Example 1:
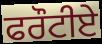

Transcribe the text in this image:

ਫਰੌਟੀਏ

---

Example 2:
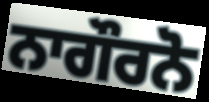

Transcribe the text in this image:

ਨਾਗੌਰਨੋ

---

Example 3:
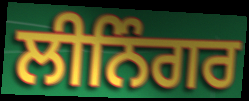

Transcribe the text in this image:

ਲੀਨਿੰਗਰ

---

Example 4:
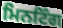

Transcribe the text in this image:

ਮਿਨਟਿੰਗ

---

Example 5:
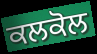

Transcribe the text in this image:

ਕਲਕੋਲ